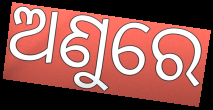
ଅଣୁରେ